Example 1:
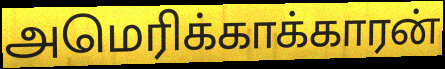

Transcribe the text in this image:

அமெரிக்காக்காரன்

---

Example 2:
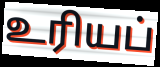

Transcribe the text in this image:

உரியப்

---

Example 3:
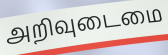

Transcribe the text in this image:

அறிவுடைமை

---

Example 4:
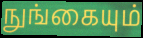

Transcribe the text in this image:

நுங்கையும்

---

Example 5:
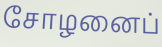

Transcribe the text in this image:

சோழனைப்